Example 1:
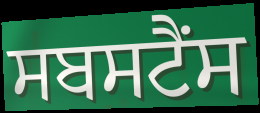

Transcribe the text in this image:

ਸਬਸਟੈਂਸ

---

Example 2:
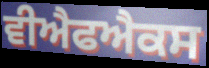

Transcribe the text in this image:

ਵੀਐਫਐਕਸ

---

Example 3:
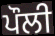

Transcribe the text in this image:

ਪੌਲੀ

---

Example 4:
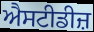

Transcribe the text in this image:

ਐਸਟੀਡੀਜ਼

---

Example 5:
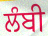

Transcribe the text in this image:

ਲੰਬੀ